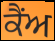
ਕੈਂਅ